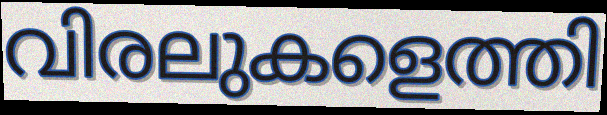
വിരലുകളെത്തി